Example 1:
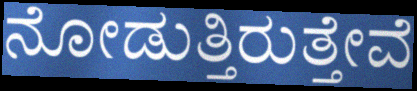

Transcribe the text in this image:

ನೋಡುತ್ತಿರುತ್ತೇವೆ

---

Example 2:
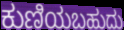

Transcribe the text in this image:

ಕುಣಿಯಬಹುದು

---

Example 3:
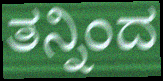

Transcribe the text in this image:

ತನ್ನಿಂದ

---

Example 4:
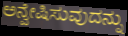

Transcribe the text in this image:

ಅನ್ವೇಷಿಸುವುದನ್ನು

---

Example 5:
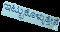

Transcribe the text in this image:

ಇಟ್ಟುಕೊಳ್ಳುತ್ತೇನೆ